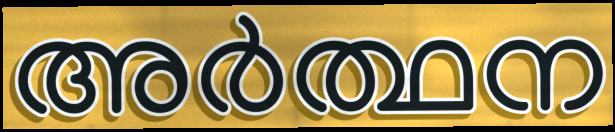
അർത്ഥന